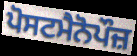
ਪੋਸਟਮੈਨੋਪੌਜ਼